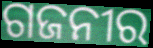
ଗଜନୀର